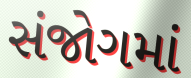
સંજોગમાં